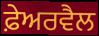
ਫ਼ੇਅਰਵੈਲ